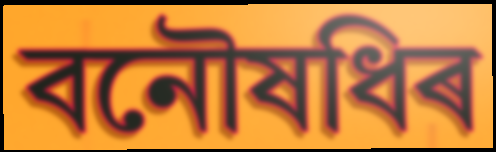
বনৌষধিৰ